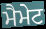
ਮੈਮੇਟ